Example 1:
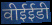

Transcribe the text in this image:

वीईईडी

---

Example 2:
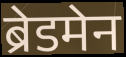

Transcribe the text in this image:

ब्रेडमेन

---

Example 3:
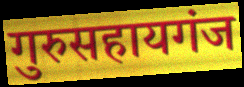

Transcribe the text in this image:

गुरुसहायगंज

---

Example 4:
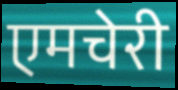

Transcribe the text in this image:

एमचेरी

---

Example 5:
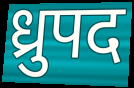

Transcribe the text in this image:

ध्रुपद